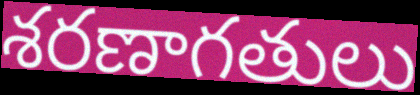
శరణాగతులు